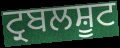
ਟ੍ਰਬਲਸ਼ੂਟ